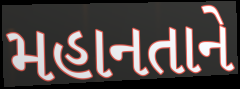
મહાનતાને